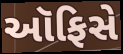
ઑફિસે